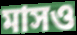
মাসও